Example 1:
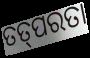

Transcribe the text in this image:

ତତ୍‌ପରତା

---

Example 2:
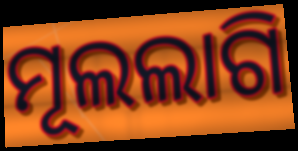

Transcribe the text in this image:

ମୂଲଲାଗି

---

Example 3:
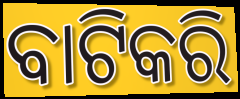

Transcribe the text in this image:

ବାଟିକରି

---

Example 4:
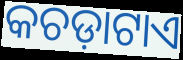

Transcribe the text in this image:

କଚଡ଼ାଟାଏ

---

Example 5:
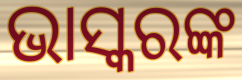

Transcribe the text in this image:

ଭାସ୍କରଙ୍କ